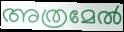
അത്രമേൽ